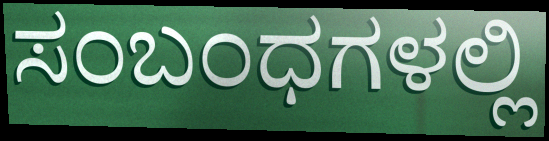
ಸಂಬಂಧಗಳಲ್ಲಿ